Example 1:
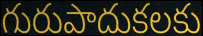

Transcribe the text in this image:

గురుపాదుకలకు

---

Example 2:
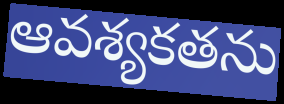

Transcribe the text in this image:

ఆవశ్యకతను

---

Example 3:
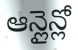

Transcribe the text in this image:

ఆన్లైన్లో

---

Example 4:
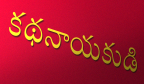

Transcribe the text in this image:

కథనాయకుడి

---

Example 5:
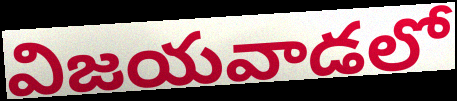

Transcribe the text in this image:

విజయవాడలో